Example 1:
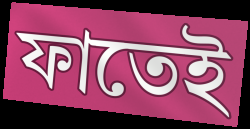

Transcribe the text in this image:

ফাতেই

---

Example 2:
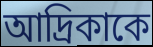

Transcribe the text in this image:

আদ্রিকাকে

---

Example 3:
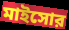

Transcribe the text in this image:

মাইসোর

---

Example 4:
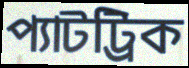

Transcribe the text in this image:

প্যাটট্রিক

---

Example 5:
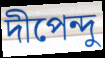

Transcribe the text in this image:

দীপেন্দু